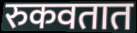
रुकवतात